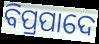
ବିପ୍ରପାଦେ